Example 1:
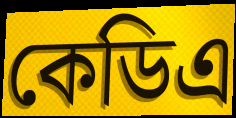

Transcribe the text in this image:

কেডিএ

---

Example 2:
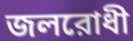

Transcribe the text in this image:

জলরোধী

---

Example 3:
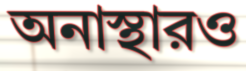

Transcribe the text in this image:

অনাস্থারও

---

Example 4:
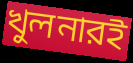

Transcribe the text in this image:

খুলনারই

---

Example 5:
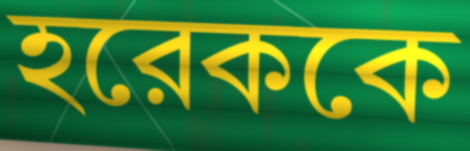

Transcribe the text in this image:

হরেককে